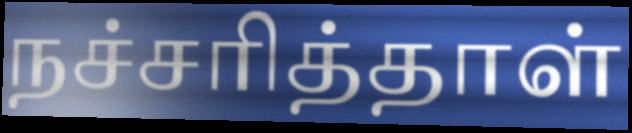
நச்சரித்தாள்